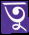
তু